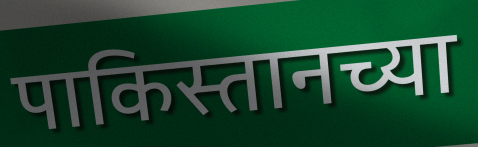
पाकिस्तानच्या